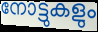
നോട്ടുകളും